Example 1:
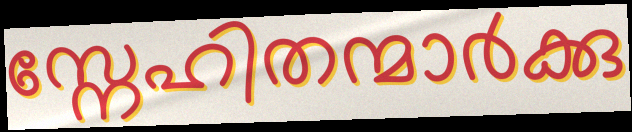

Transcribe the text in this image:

സ്നേഹിതന്മാർക്കു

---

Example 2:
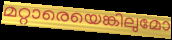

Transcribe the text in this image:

മറ്റാരെയെങ്കിലുമോ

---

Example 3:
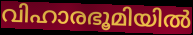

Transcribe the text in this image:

വിഹാരഭൂമിയിൽ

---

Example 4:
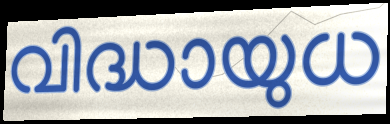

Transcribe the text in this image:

വിദ്ധായുധ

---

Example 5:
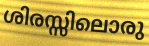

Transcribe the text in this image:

ശിരസ്സിലൊരു